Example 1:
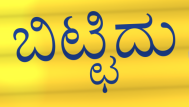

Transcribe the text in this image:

ಬಿಟ್ಟಿದು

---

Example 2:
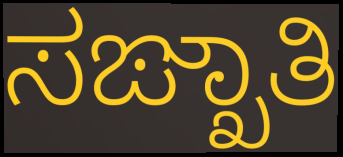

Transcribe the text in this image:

ಸಙ್ಖಾತಿ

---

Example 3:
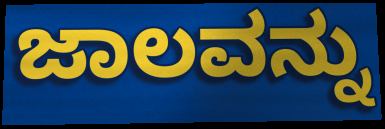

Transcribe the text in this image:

ಜಾಲವನ್ನು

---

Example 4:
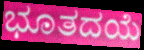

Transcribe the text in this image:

ಭೂತದಯೆ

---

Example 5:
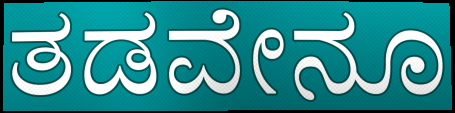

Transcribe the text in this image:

ತಡವೇನೂ